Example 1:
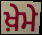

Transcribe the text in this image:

ਖ਼ੇਮੇ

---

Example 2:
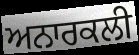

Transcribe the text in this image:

ਅਨਾਰਕਲੀ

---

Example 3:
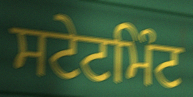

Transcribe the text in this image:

ਸਟੇਟਮਿੰਟ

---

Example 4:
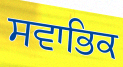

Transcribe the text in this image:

ਸਵਾਭਿਕ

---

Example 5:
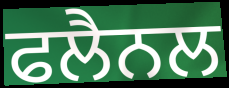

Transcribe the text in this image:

ਫਲੈਨਲ